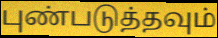
புண்படுத்தவும்